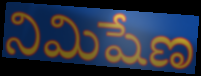
నిమిషేణ